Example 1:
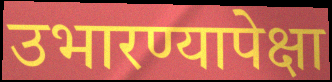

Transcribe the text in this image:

उभारण्यापेक्षा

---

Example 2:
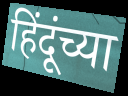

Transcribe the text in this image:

हिंदूंच्या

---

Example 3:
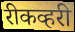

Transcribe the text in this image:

रीकव्हरी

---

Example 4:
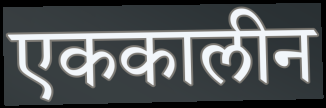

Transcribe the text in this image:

एककालीन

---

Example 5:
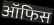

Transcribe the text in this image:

ऑफिस